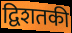
द्विशतकी